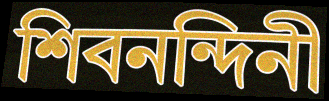
শিবনন্দিনী